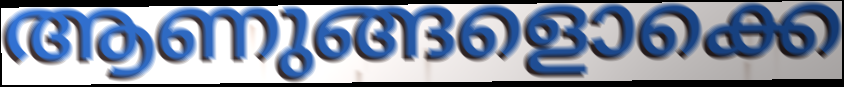
ആണുങ്ങളൊക്കെ